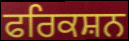
ਫਰਿਕਸ਼ਨ